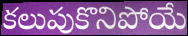
కలుపుకొనిపోయే